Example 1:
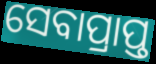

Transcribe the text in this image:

ସେବାପ୍ରାପ୍ତ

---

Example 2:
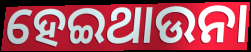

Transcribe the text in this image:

ହେଇଥାଉନା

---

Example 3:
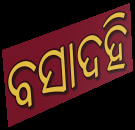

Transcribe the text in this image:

ବସାଦହି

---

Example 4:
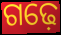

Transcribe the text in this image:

ଗଢ଼େ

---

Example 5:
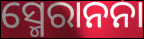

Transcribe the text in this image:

ସ୍ମେରାନନା